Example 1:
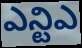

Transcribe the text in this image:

ఎన్టిఎ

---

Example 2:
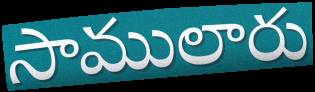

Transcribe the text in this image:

సాములారు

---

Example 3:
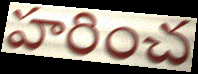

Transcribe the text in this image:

హరించ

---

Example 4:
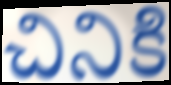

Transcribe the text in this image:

చినికి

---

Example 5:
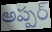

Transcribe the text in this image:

అప్పర్